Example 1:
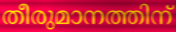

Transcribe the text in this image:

തീരുമാനത്തിന്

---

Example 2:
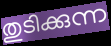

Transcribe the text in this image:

തുടിക്കുന്ന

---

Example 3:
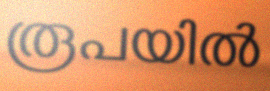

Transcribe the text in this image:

രൂപയിൽ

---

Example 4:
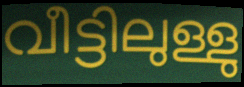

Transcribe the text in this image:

വീട്ടിലുള്ളു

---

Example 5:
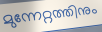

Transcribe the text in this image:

മുന്നേറ്റത്തിനും